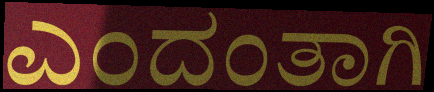
ಎಂದಂತಾಗಿ